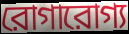
রোগারোগ্য